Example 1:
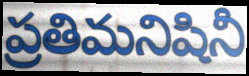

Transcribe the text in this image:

ప్రతిమనిషినీ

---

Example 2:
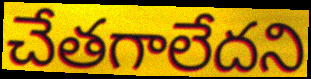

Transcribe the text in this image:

చేతగాలేదని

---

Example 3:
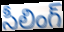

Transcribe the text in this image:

సీలింగ్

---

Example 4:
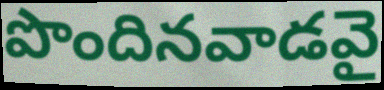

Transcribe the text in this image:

పొందినవాడవై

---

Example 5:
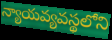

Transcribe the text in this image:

న్యాయవ్యవస్థలోని